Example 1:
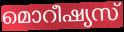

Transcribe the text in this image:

മൊറീഷ്യസ്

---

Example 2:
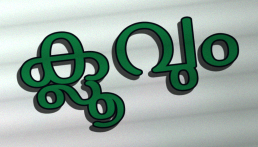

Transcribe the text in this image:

ക്ലൂവും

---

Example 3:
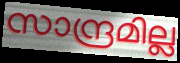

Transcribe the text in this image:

സാന്ദ്രമില്ല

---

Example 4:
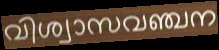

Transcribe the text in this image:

വിശ്വാസവഞ്ചന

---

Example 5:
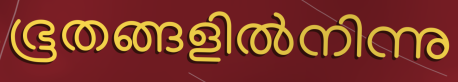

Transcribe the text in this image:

ഭൂതങ്ങളിൽനിന്നു